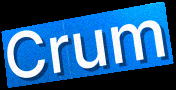
Crum